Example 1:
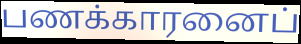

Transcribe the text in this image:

பணக்காரனைப்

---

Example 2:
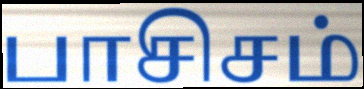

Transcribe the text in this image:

பாசிசம்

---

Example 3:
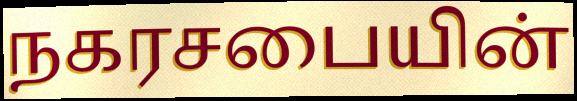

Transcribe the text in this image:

நகரசபையின்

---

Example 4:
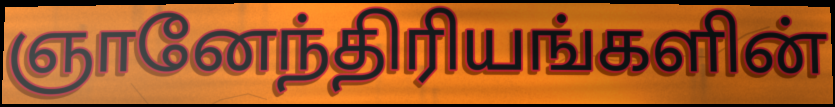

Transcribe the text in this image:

ஞானேந்திரியங்களின்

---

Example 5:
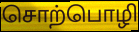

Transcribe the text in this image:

சொற்பொழி